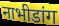
नाभीडांग